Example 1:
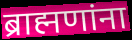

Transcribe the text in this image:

ब्राह्मणांना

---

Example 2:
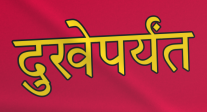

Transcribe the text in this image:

दुखेपर्यंत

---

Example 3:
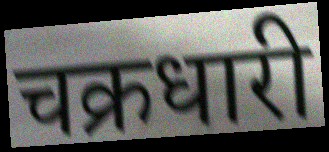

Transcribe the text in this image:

चक्रधारी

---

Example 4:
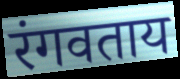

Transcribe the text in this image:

रंगवताय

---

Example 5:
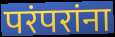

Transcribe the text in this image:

परंपरांना